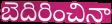
బెదిరించినా